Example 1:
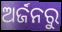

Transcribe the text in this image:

ଅର୍ଜନରୁ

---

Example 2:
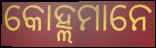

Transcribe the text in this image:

କୋହ୍ଲମାନେ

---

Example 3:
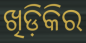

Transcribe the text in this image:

ଖିଡ଼ିକିର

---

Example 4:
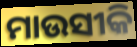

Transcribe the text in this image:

ମାଉସୀକି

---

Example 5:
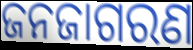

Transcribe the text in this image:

ଜନଜାଗରଣ